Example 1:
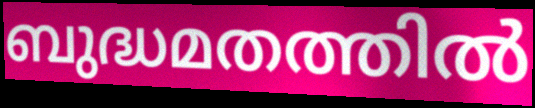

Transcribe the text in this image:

ബുദ്ധമതത്തിൽ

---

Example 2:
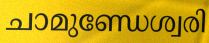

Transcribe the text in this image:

ചാമുണ്ഡേശ്വരി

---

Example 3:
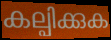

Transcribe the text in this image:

കല്പിക്കുക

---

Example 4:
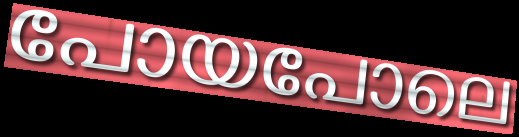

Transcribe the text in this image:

പോയപോലെ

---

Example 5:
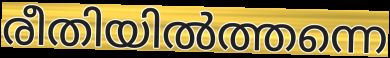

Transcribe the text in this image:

രീതിയിൽത്തന്നെ